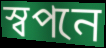
স্বপনে